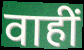
वाहीं